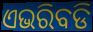
ଏଭରିବଡି